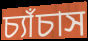
চ্যাঁচাস